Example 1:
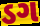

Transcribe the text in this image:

ડગ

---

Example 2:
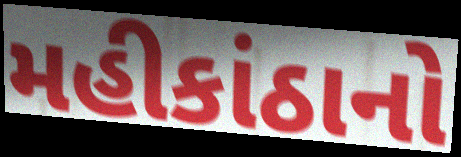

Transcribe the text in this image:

મહીકાંઠાનો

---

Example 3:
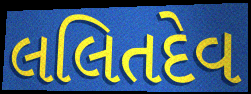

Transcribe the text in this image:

લલિતદેવ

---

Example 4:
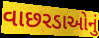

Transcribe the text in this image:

વાછરડાઓનું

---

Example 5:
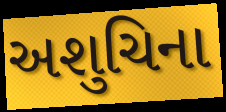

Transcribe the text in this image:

અશુચિના